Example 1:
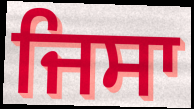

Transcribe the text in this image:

ਜਿਸਾ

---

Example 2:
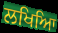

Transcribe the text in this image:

ਲਖਿਆਿ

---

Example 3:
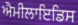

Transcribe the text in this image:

ਐਮੀਲਾਇਡਿਸ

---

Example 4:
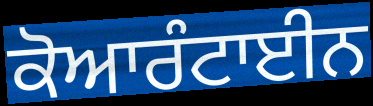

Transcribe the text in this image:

ਕੋਆਰੰਟਾਈਨ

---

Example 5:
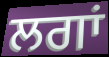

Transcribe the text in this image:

ਲਗਾਂ